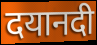
दयानदी